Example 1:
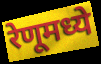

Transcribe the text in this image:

रेणूमध्ये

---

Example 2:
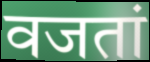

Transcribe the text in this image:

वजतां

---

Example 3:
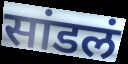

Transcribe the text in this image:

सांडलं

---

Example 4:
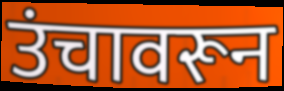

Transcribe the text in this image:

उंचावरून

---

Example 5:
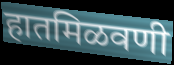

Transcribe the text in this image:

हातमिळवणी